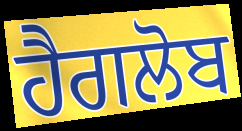
ਹੈਗਲੋਬ